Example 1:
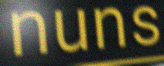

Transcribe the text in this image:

nuns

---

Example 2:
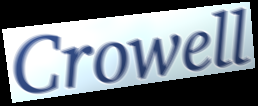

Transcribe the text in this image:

Crowell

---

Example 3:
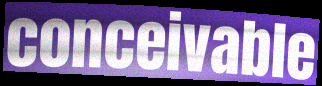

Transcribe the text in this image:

conceivable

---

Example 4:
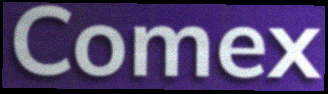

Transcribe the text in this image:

Comex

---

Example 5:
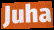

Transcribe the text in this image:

Juha